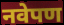
नवेपण